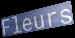
Fleurs